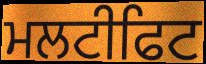
ਮਲਟੀਫਿਟ